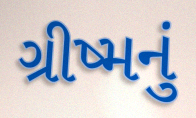
ગ્રીષ્મનું